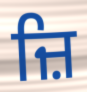
ਜ਼ਿ